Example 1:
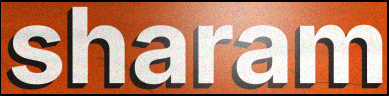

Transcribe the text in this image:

sharam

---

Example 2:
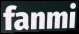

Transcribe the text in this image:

fanmi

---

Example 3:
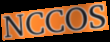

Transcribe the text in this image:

NCCOS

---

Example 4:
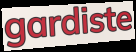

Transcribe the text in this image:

gardiste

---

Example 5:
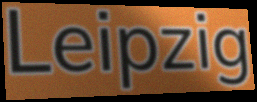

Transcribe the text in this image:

Leipzig